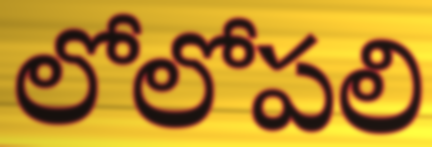
లోలోపలి